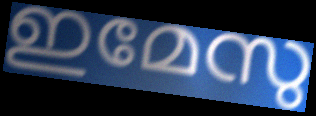
ഇമേസു